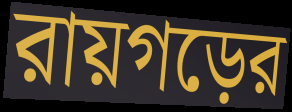
রায়গড়ের